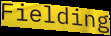
Fielding